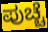
ಪುಚ್ಚೆ